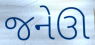
જનેઊ